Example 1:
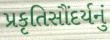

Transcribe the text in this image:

પ્રકૃતિસૌંદર્યનું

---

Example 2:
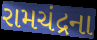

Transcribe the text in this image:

રામચંદ્રના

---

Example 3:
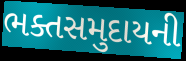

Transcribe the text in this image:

ભક્તસમુદાયની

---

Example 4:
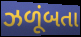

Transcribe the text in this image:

ઝળૂંબતા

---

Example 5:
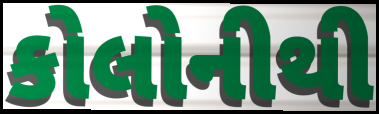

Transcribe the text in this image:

કોલોનીથી